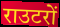
राउटरों